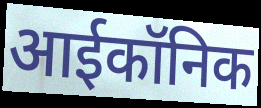
आईकॉनिक